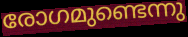
രോഗമുണ്ടെന്നു